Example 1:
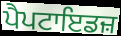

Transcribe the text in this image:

ਪੈਪਟਾਇਡਜ਼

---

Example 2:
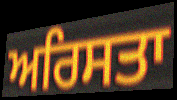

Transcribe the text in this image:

ਅਰਿਸਤਾ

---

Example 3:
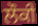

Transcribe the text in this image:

ਲੌਕੀ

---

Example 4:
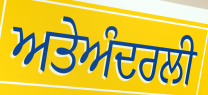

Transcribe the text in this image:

ਅਤੇਅੰਦਰਲੀ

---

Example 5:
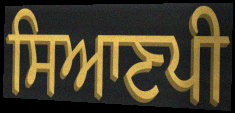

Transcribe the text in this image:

ਸਿਆਣਪੀ